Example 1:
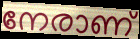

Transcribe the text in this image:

നേരാണ്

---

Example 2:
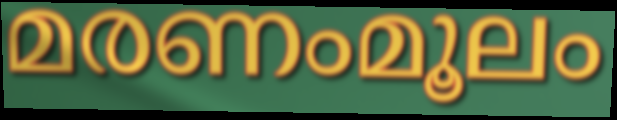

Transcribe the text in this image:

മരണംമൂലം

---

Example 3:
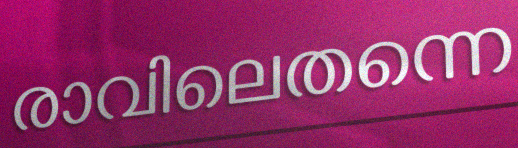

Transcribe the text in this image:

രാവിലെതന്നെ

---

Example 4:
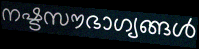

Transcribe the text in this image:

നഷ്ടസൗഭാഗ്യങ്ങൾ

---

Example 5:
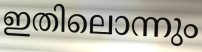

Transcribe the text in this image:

ഇതിലൊന്നും